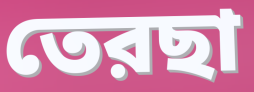
তেরছা